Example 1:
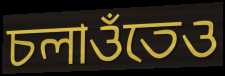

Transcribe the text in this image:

চলাওঁতেও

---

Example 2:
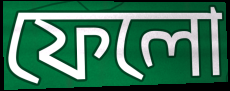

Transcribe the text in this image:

ফেলো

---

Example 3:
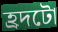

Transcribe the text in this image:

হ্ৰদটো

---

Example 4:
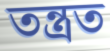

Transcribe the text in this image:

তন্ত্ৰত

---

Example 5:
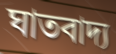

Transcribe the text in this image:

ঘাতবাদ্য